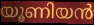
യൂണിയൻ